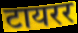
टायरर